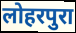
लोहरपुरा